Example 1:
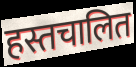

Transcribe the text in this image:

हस्तचालित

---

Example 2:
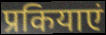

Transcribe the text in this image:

प्रकियाएं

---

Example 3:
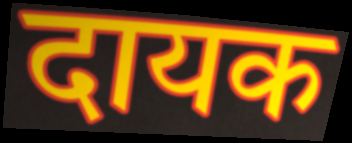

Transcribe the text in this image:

दायक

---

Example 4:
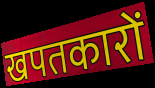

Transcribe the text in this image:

खपतकारों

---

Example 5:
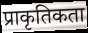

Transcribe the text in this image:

प्राकृतिकता